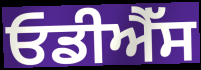
ਓਡੀਐੱਸ